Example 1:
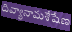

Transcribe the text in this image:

దివ్యానామశేషేణ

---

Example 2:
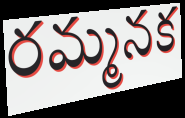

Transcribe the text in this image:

రమ్మనక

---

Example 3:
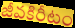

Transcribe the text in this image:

జీవకిరీటం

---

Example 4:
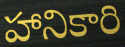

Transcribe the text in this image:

హానికారి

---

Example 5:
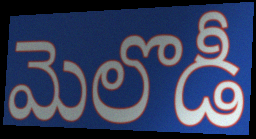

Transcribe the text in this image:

మెలొడీ